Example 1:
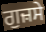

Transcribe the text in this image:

ਗੁਜ਼ਸੇ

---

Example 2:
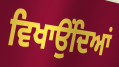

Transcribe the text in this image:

ਵਿਖਾਉਂਦਿਆਂ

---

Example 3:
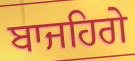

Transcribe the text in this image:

ਬਾਜਹਿਗੇ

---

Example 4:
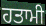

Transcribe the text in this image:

ਹਤਾਮੀ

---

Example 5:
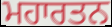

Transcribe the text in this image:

ਮਹਾਰਤਨ